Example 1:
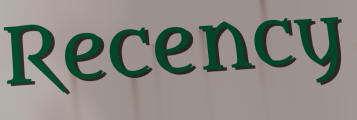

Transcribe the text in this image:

Recency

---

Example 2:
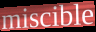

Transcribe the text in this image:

miscible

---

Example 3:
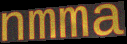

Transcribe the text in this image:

nmma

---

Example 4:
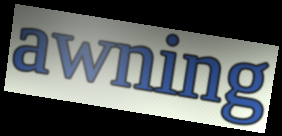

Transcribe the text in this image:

awning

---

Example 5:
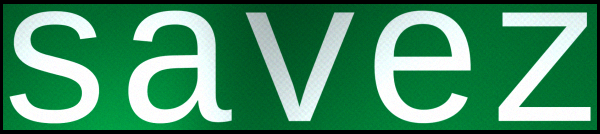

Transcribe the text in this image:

savez